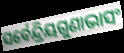
ସର୍ବେନ୍ଦ୍ରିୟଗୁଣାଭାସଂ